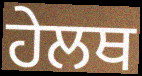
ਹੇਲਥ